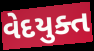
વેદયુક્ત